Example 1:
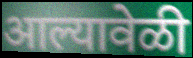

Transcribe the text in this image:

आल्यावेळी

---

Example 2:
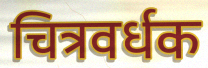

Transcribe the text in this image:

चित्रवर्धक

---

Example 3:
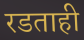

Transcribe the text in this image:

रडताही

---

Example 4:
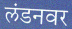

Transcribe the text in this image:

लंडनवर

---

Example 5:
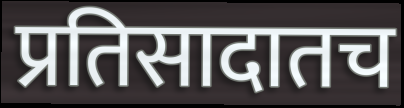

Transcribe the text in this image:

प्रतिसादातच